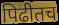
पिढीतच